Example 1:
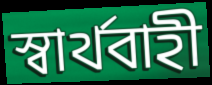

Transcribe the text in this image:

স্বার্থবাহী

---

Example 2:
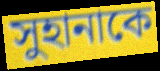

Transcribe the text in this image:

সুহানাকে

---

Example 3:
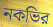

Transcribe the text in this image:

নকভির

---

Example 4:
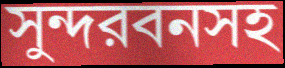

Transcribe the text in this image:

সুন্দরবনসহ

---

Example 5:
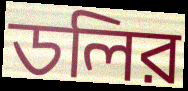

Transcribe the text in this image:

ডলির